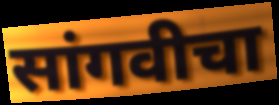
सांगवीचा